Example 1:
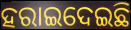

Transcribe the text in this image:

ହରାଇଦେଇଛି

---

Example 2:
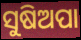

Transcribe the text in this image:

ସୁଷିଅପା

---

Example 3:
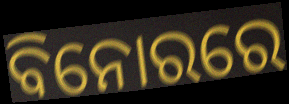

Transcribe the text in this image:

ବିନୋରରେ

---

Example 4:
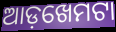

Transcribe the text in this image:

ଆଡ଼ଖେମଟା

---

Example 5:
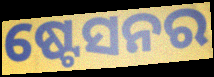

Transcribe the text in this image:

ଷ୍ଟେସନର